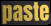
paste